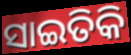
ସାଇତିକି